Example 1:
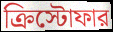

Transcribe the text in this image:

ক্রিস্টোফার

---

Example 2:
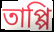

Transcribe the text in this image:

তাপ্পি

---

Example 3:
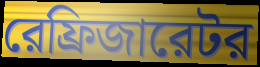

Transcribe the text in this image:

রেফ্রিজারেটর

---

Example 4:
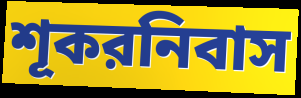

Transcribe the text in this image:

শূকরনিবাস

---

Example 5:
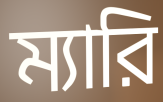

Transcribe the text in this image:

ম্যারি